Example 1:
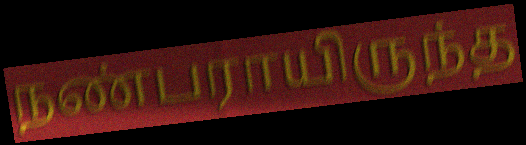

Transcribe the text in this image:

நண்பராயிருந்த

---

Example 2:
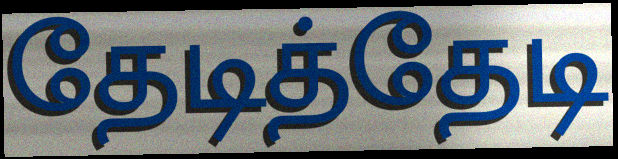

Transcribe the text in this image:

தேடித்தேடி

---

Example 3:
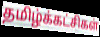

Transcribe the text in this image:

தமிழ்க்கட்சிகள்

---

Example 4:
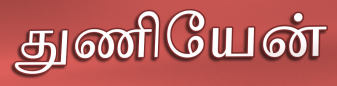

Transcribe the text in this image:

துணியேன்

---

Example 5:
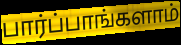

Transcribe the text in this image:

பார்ப்பாங்களாம்